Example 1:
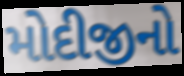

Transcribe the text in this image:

મોદીજીનો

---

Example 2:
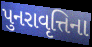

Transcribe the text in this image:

પુનરાવૃત્તિના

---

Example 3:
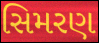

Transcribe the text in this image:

સિમરણ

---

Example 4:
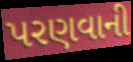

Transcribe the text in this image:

પરણવાની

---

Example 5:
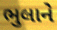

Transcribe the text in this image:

ભુલાને